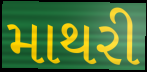
માથરી